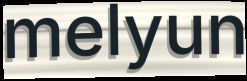
melyun